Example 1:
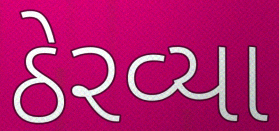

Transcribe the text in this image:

ઠેરવ્યા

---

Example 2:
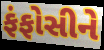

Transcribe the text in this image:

ફંફોસીને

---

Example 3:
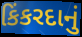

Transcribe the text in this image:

કિંકરદાનું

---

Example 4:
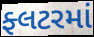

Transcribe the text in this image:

ફ્લટરમાં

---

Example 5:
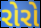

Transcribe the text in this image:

રોરો